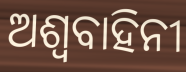
ଅଶ୍ୱବାହିନୀ